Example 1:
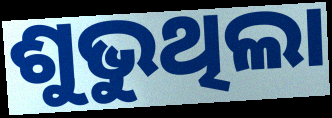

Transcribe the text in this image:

ଶୁଭୁଥିଲା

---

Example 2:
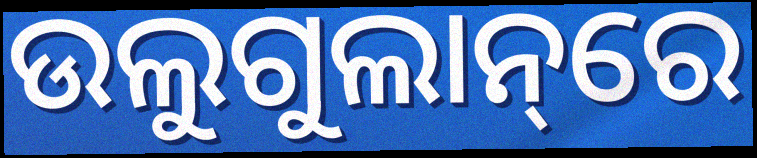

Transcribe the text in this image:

ଉଲୁଗୁଲାନ୍‌ରେ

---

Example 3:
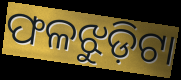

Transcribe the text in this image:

ଫଳଝୁଡ଼ିଟା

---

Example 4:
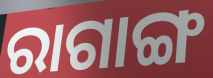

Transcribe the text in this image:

ରାଗାଙ୍ଗ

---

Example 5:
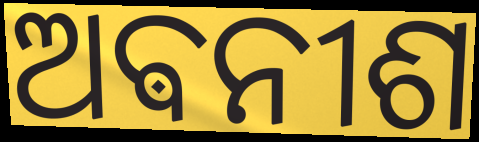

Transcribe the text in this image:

ଅଵନୀଶ